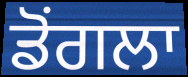
ਡੋਂਗਲਾ